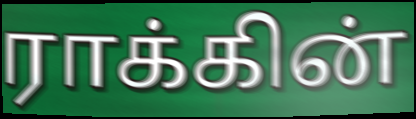
ராக்கின்